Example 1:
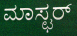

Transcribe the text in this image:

ಮಾಸ್ಟರ್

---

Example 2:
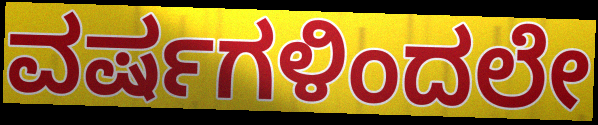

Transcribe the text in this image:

ವರ್ಷಗಳಿಂದಲೇ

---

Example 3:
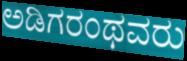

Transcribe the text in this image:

ಅಡಿಗರಂಥವರು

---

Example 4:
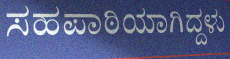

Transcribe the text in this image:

ಸಹಪಾಠಿಯಾಗಿದ್ದಳು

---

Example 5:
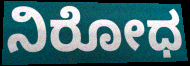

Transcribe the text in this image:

ನಿರೋಧ